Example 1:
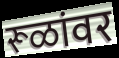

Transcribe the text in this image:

रूळांवर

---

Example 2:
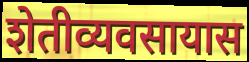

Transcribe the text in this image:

शेतीव्यवसायास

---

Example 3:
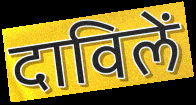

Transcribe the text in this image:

दाविलें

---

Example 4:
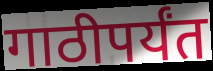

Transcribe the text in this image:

गाठीपर्यंत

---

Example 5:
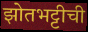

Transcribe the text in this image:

झोतभट्टीची